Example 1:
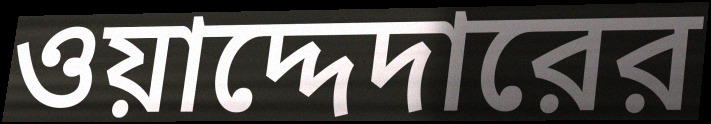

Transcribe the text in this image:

ওয়াদ্দেদারের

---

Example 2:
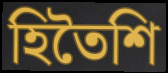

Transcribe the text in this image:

হিতৈশি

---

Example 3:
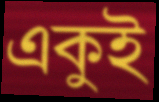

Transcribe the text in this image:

একুই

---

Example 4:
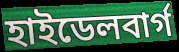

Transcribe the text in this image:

হাইডেলবার্গ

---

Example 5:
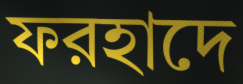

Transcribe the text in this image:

ফরহাদে